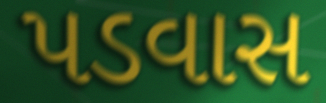
પડવાસ